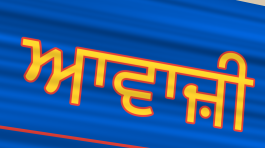
ਆਵਾਜ਼ੀ